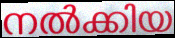
നൽക്കിയ